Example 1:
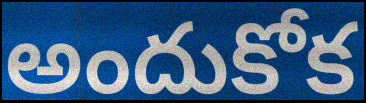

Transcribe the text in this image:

అందుకోక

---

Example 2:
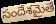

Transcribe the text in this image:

సందేశమైతే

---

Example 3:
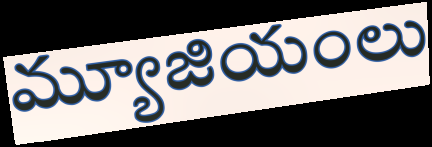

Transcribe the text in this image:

మ్యూజియంలు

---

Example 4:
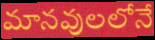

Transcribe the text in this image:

మానవులలోనే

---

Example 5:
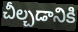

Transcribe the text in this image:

చీల్చడానికి